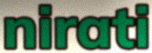
nirati